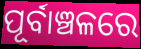
ପୂର୍ବାଞ୍ଚଳରେ